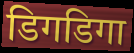
डिगडिगा